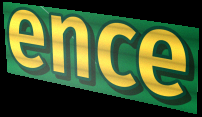
ence